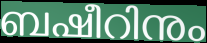
ബഷീറിനും